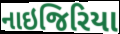
નાઇજિરિયા